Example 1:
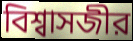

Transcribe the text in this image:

বিশ্বাসজীর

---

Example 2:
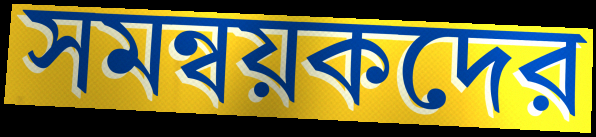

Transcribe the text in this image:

সমন্বয়কদের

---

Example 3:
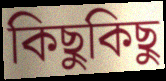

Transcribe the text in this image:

কিছুকিছু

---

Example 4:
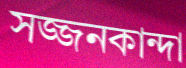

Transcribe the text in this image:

সজ্জনকান্দা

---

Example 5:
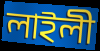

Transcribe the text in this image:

লাইলী